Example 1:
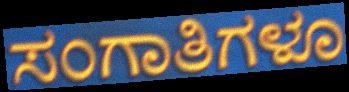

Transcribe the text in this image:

ಸಂಗಾತಿಗಳೂ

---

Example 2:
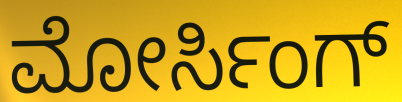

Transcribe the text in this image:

ಮೋರ್ಸಿಂಗ್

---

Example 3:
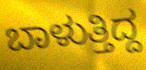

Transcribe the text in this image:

ಬಾಳುತ್ತಿದ್ದ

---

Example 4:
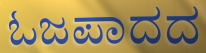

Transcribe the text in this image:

ಓಜಪಾದದ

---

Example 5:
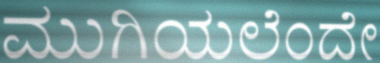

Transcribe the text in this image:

ಮುಗಿಯಲೆಂದೇ